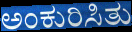
ಅಂಕುರಿಸಿತು